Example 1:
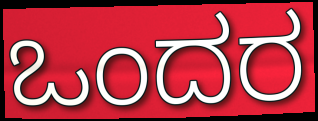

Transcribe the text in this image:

ಒಂದರ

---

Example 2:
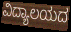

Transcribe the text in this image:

ವಿದ್ಯಾಲಯದ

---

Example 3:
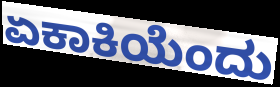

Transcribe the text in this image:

ಏಕಾಕಿಯೆಂದು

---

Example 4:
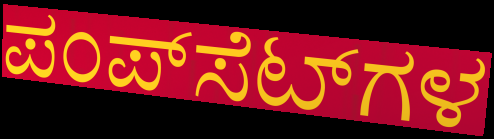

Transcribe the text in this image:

ಪಂಪ್‌ಸೆಟ್‌ಗಳ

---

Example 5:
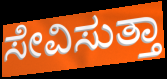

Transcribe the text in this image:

ಸೇವಿಸುತ್ತಾ